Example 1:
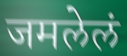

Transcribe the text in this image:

जमलेलं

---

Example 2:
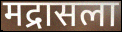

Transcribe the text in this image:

मद्रासला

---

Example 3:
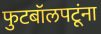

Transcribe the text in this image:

फुटबॉलपटूंना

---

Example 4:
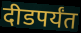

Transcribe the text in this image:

दीडपर्यंत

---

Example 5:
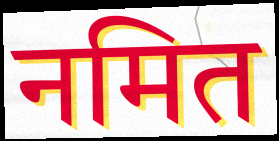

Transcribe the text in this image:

नमित